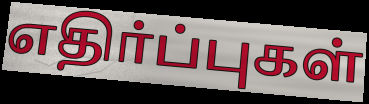
எதிர்ப்புகள்